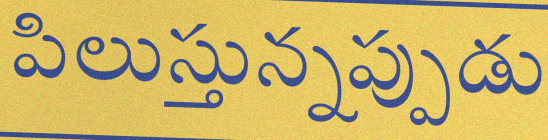
పిలుస్తున్నప్పుడు